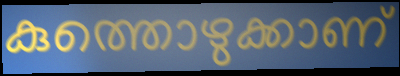
കുത്തൊഴുക്കാണ്